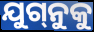
ଯୁଗ୍‌ନୁକୁ